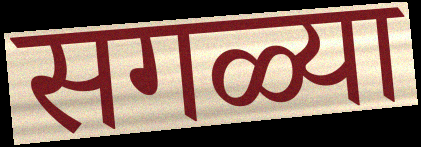
सगळ्या